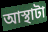
আস্থাটা